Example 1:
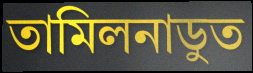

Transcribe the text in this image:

তামিলনাডুত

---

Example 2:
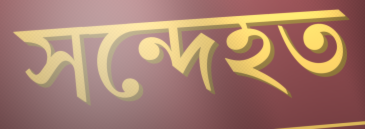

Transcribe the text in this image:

সন্দেহত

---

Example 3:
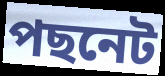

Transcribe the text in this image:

পছনেট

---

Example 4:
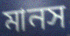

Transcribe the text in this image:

মানস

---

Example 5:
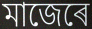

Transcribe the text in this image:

মাজেৰে